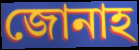
জোনাহ